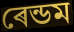
ৰেন্ডম